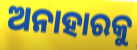
ଅନାହାରକୁ